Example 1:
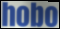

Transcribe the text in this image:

hobo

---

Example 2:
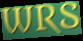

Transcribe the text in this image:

WRS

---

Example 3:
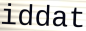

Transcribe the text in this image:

iddat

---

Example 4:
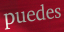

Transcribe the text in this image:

puedes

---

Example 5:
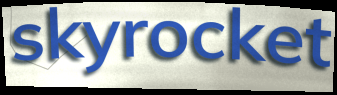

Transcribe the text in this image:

skyrocket